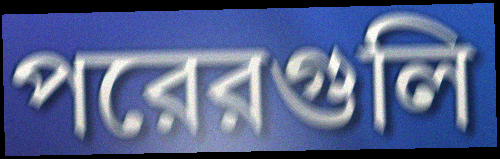
পরেরগুলি